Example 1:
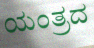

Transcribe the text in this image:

ಯಂತ್ರದ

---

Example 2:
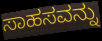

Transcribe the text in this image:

ಸಾಹಸವನ್ನು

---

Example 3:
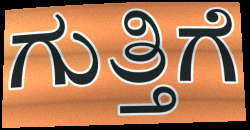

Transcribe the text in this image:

ಗುತ್ತಿಗೆ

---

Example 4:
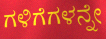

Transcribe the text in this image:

ಗಳಿಗೆಗಳನ್ನೇ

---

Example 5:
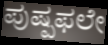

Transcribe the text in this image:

ಪುಷ್ಪಫಲೇ